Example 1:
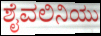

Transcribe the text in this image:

ಶೈವಲಿನಿಯು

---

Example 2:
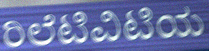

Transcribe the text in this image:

ರಿಲೆಟಿವಿಟಿಯ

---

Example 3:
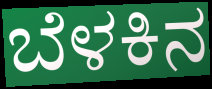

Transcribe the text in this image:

ಬೆಳಕಿನ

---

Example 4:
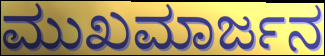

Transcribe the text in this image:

ಮುಖಮಾರ್ಜನ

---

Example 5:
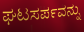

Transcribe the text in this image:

ಘಟಸರ್ಪವನ್ನು